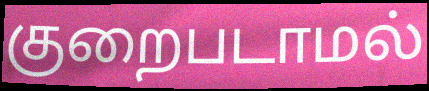
குறைபடாமல்